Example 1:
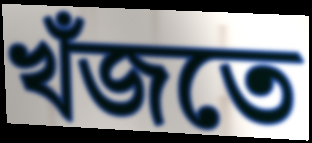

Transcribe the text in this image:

খঁজতে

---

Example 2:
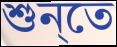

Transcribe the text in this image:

শুন্‌তে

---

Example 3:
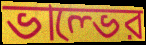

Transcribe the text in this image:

ভাল্ভের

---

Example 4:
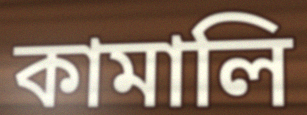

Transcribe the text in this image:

কামালি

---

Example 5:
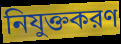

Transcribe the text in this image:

নিযুক্তকরণ